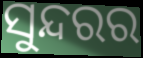
ସୁନ୍ଦରର